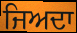
ਜਿਅਦਾ